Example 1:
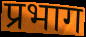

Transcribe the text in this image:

प्रभाग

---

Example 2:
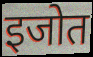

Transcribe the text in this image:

इजोत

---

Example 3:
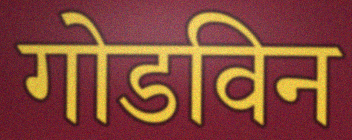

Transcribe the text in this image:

गोडविन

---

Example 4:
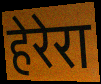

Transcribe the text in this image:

हेरेरा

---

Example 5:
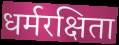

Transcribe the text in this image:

धर्मरक्षिता